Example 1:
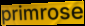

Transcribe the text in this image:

primrose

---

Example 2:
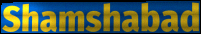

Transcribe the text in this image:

Shamshabad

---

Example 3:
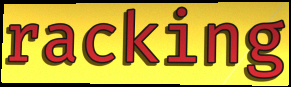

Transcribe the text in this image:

racking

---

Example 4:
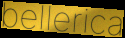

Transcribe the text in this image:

bellerica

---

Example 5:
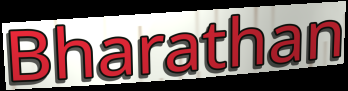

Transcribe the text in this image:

Bharathan